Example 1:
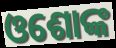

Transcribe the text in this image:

ଓଶୋଙ୍କ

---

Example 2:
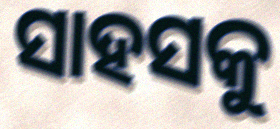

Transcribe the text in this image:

ସାହସକୁ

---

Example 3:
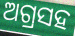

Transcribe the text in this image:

ଅଗ୍ରସହ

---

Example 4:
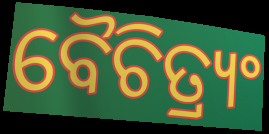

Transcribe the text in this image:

ବୈଚିତ୍ର୍ୟଂ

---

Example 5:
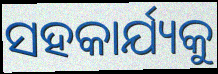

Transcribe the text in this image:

ସହକାର୍ଯ୍ୟକୁ